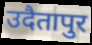
उदैतापुर